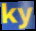
ky